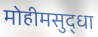
मोहीमसुद्धा